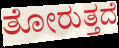
ತೋರುತ್ತದೆ